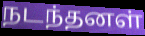
நடந்தனள்